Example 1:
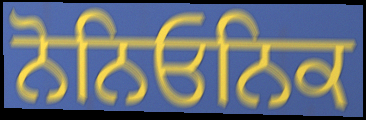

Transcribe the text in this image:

ਨੋਨਿਓਨਿਕ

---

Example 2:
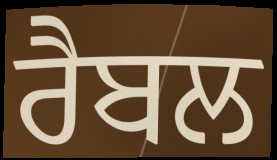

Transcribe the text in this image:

ਰੈਬਲ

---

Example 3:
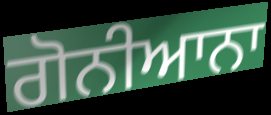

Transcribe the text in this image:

ਗੋਨੀਆਨਾ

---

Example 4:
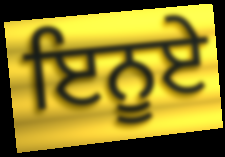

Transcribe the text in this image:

ਇਨੂਏ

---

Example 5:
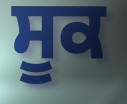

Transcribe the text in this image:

ਸੂਕ